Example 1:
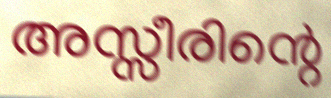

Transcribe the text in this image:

അസ്സീരിന്റെ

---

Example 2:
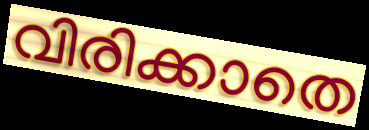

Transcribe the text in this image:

വിരിക്കാതെ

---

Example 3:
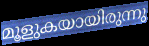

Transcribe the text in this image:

മൂളുകയായിരുന്നു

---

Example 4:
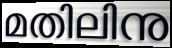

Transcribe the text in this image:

മതിലിനു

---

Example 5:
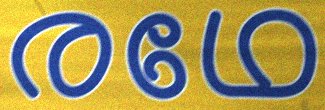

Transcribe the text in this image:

രഥേ